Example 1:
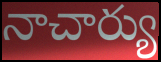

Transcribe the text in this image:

నాచార్యు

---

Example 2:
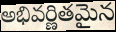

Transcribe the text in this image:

అభివర్ణితమైన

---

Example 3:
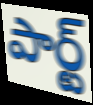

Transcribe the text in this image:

పార్ట్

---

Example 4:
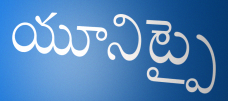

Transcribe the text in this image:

యూనిట్పై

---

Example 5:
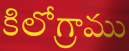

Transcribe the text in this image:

కిలోగ్రాము